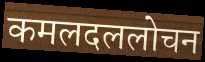
कमलदललोचन